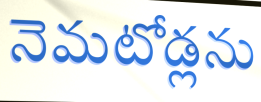
నెమటోడ్లను